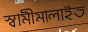
স্বামীমালাইত